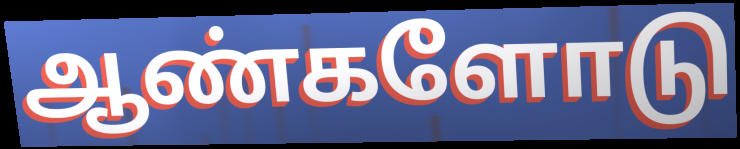
ஆண்களோடு